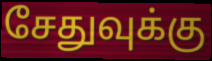
சேதுவுக்கு